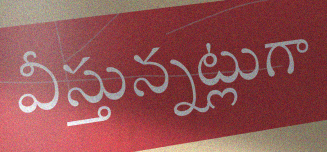
వీస్తున్నట్లుగా